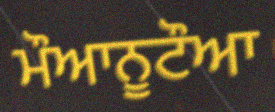
ਮੌਆਨੂਟੌਆ